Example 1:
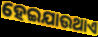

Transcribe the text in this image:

ହେଇଯାଉଥାଏ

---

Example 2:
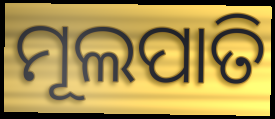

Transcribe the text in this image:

ମୂଲପାତି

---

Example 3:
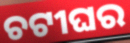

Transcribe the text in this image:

ଚଟୀଘର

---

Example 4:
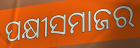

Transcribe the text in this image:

ପକ୍ଷୀସମାଜର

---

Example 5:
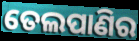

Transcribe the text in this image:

ତେଲପାଣିର